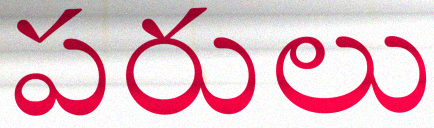
పరులు